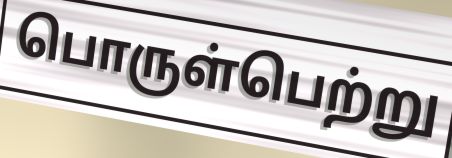
பொருள்பெற்று